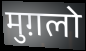
मुग़लो